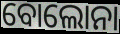
ବୋଲୋନା